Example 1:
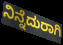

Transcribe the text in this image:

ನಿನ್ನೆದುರಾಗಿ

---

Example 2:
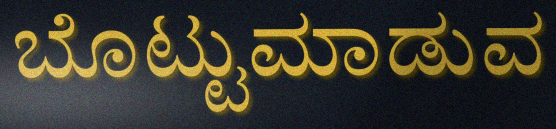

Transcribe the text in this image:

ಬೊಟ್ಟುಮಾಡುವ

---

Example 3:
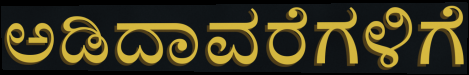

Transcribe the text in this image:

ಅಡಿದಾವರೆಗಳಿಗೆ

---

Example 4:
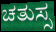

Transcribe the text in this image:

ಚತುಸ್ಸ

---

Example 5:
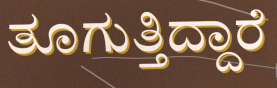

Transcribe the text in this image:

ತೂಗುತ್ತಿದ್ದಾರೆ